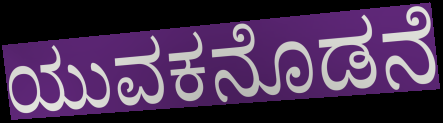
ಯುವಕನೊಡನೆ